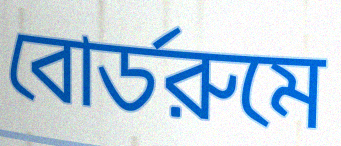
বোর্ডরুমে